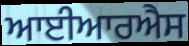
ਆਈਆਰਐਸ